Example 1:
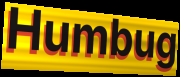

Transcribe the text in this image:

Humbug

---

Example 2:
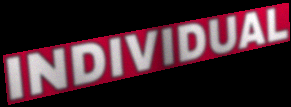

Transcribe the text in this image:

INDIVIDUAL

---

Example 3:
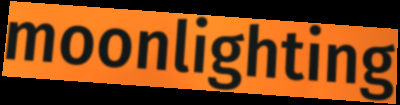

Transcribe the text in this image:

moonlighting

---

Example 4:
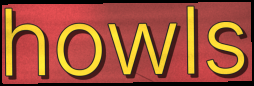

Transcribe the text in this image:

howls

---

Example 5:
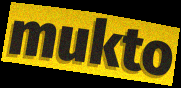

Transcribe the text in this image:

mukto